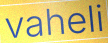
vaheli